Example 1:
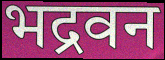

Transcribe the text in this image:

भद्रवन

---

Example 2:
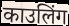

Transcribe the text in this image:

काउलिंग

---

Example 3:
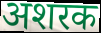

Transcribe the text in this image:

अशरक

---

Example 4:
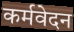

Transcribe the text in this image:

कर्मवेदन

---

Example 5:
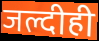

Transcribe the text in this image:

जल्दीही